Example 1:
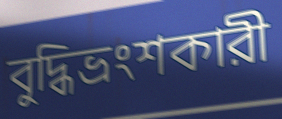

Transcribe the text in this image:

বুদ্ধিভ্রংশকারী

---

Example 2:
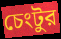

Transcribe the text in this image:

চেংটুর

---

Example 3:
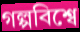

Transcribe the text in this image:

গল্পবিশ্বে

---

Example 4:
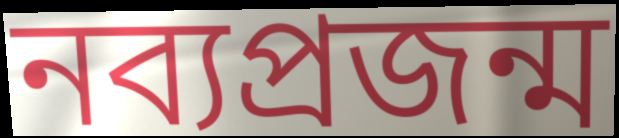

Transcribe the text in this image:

নব্যপ্রজন্ম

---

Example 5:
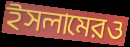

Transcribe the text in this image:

ইসলামেরও